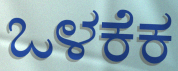
ಒಳಕೆಕ